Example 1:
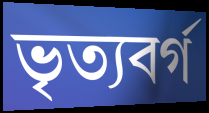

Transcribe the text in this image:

ভৃত্যবর্গ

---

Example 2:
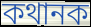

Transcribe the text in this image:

কথানক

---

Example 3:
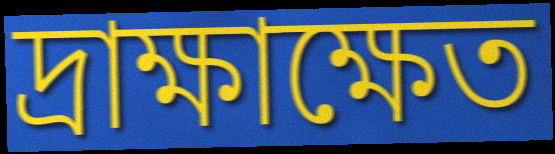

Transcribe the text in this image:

দ্রাক্ষাক্ষেত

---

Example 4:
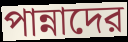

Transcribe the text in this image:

পান্নাদের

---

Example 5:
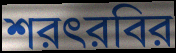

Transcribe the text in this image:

শরৎরবির